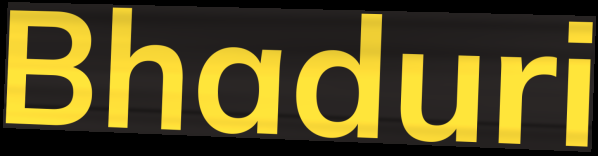
Bhaduri